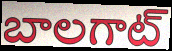
బాలగాట్